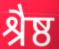
श्रैष्ठ